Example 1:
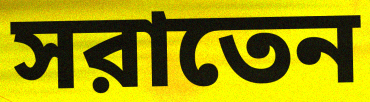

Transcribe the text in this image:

সরাতেন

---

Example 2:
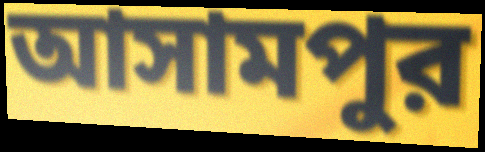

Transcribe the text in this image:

আসামপুর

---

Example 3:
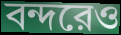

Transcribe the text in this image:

বন্দরেও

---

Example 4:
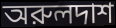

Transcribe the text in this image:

অরুলদাশ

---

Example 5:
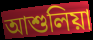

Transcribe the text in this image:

আশুলিয়া